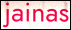
jainas